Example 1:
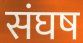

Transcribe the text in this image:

संघष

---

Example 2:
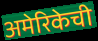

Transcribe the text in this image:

अमेरिकेची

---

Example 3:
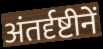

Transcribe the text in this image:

अंतर्दृष्टीनें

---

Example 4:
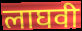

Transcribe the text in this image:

लाघवी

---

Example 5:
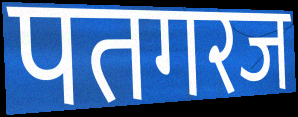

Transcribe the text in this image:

पतगरज